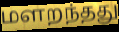
மளறந்தது